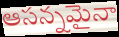
ఆసన్నమైనా